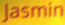
Jasmin